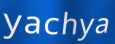
yachya